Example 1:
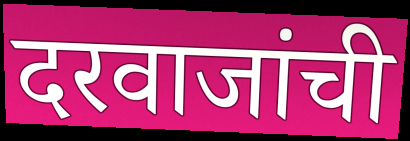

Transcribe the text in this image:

दरवाजांची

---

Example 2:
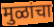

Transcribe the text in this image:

मुळांचा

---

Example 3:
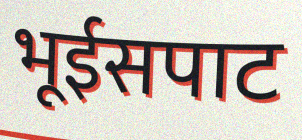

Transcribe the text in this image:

भूईसपाट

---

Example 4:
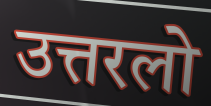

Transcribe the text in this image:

उत्तरलो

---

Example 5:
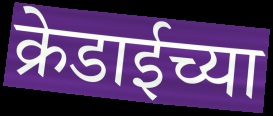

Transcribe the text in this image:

क्रेडाईच्या